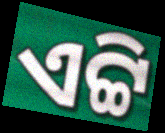
ଏଟ୍ଟି